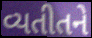
વ્યતીતને